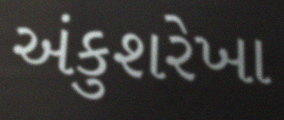
અંકુશરેખા